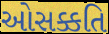
ઓસક્કતિ